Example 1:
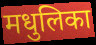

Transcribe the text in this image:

मधुलिका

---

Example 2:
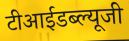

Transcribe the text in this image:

टीआईडब्ल्यूजी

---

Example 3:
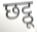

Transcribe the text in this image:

छट्ठू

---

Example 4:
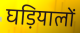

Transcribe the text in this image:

घड़ियालों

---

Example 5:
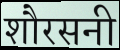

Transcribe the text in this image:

शौरसनी